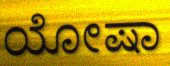
ಯೋಷಾ